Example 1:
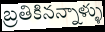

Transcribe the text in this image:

బ్రతికినన్నాళ్ళు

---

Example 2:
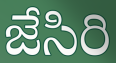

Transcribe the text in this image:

జేసిరి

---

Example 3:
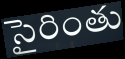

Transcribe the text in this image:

సైరింతు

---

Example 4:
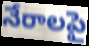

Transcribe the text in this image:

నేరాలపై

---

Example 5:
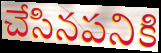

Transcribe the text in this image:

చేసినపనికి